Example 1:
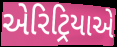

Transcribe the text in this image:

એરિટ્રિયાએ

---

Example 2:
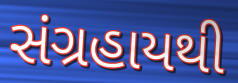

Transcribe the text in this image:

સંગ્રહાયથી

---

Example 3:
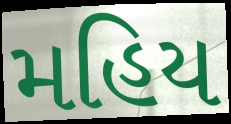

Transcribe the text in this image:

મહિય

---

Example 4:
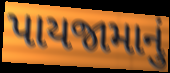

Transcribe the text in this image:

પાયજામાનું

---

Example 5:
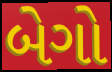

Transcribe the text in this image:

બેગો